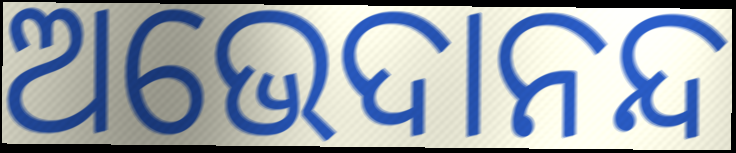
ଅଭେଦାନନ୍ଦ